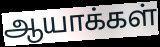
ஆயாக்கள்